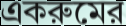
একরুমের